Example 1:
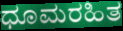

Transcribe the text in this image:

ಧೂಮರಹಿತ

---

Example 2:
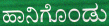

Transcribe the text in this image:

ಹಾನಿಗೊಂಡು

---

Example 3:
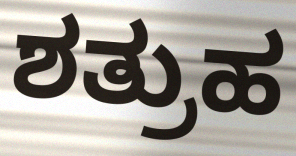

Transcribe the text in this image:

ಶತ್ರುಹ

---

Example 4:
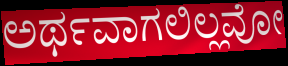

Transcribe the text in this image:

ಅರ್ಥವಾಗಲಿಲ್ಲವೋ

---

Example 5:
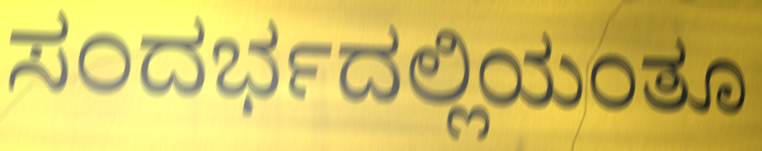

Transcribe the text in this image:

ಸಂದರ್ಭದಲ್ಲಿಯಂತೂ